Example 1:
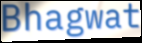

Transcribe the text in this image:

Bhagwat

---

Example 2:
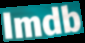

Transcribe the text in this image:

Imdb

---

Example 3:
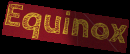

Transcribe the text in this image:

Equinox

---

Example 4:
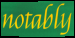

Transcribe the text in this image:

notably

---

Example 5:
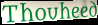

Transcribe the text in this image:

Thouheed